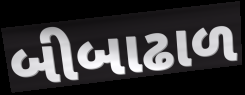
બીબાઢાળ